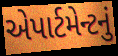
એપાર્ટમેન્ટનું